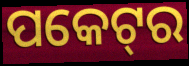
ପକେଟ୍‌ର